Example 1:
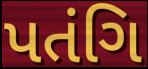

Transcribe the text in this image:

પતંગિ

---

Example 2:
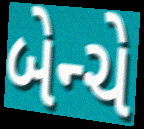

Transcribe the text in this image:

બેન્ચે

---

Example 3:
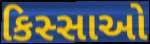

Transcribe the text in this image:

કિસ્સાઓ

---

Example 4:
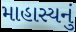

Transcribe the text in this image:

માહાસ્યનું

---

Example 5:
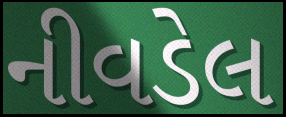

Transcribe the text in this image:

નીવડેલ